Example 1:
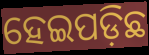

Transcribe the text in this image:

ହେଇପଡ଼ିଛ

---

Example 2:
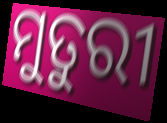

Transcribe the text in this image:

ମୁତୁରୀ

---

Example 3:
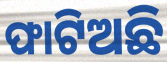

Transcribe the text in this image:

ଫାଟିଅଛି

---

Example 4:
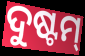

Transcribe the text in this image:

ଦୁଷ୍ଟମ୍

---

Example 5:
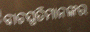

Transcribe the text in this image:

ବାଚସ୍ପତିମାନଙ୍କର